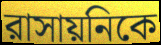
রাসায়নিকে